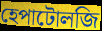
হেপাটোলজি